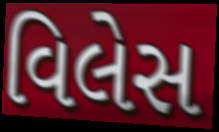
વિલેસ